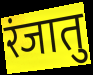
रंजातु